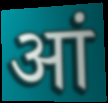
आं